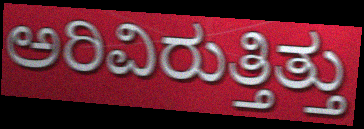
ಅರಿವಿರುತ್ತಿತ್ತು